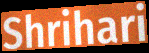
Shrihari